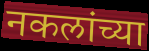
नकलांच्या